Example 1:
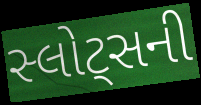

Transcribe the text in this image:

સ્લોટ્સની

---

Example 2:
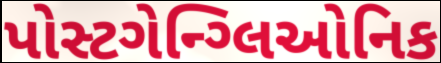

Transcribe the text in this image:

પોસ્ટગેન્ગ્લિઓનિક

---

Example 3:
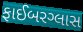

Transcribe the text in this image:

ફાઈબરગ્લાસ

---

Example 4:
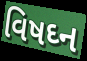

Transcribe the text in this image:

વિષઘ્ન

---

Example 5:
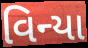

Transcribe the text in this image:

વિન્યા